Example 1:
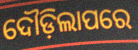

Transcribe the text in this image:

ଦୌଡ଼ିଲାପରେ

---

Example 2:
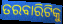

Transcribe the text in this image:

ତରବାରିଟିକୁ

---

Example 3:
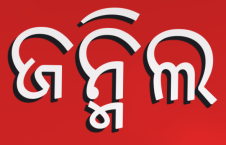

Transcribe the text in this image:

ଜନ୍ମିଲ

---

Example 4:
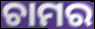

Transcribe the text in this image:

ଚାମର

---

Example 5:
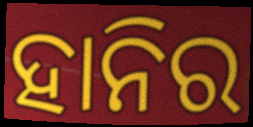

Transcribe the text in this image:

ହାନିର